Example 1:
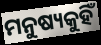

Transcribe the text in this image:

ମନୁଷ୍ୟକୁହିଁ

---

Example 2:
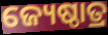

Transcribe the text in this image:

ଜ୍ୟେଷ୍ଠାତ୍ର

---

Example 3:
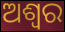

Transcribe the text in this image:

ଅଶ୍ୱର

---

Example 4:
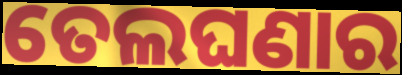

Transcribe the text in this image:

ତେଲଘଣାର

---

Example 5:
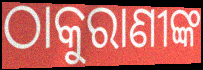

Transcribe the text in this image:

ଠାକୁରାଣୀଙ୍କ